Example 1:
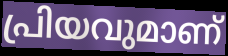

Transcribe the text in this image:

പ്രിയവുമാണ്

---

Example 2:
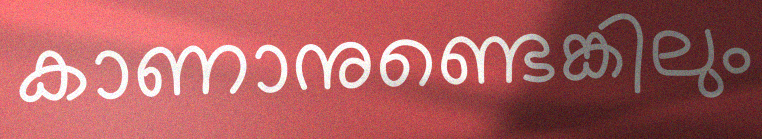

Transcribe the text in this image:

കാണാനുണ്ടെങ്കിലും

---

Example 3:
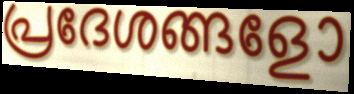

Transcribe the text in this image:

പ്രദേശങ്ങളോ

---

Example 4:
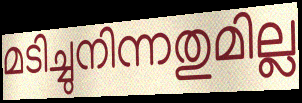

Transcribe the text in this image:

മടിച്ചുനിന്നതുമില്ല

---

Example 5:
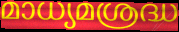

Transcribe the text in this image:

മാധ്യമശ്രദ്ധ